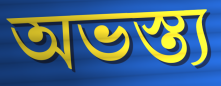
অভস্ত্য